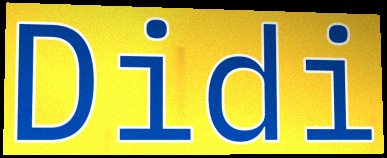
Didi